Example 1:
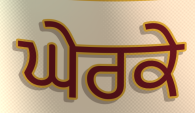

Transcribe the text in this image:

ਘੇਰਕੇ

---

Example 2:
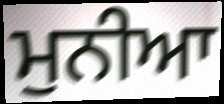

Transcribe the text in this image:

ਮੁਨੀਆ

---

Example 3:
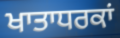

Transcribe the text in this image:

ਖਾਤਾਧਰਕਾਂ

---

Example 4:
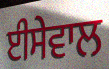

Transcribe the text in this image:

ਈਸੇਵਾਲ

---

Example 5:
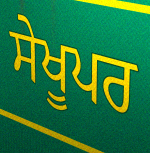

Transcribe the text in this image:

ਸੇਖੂਪਰ